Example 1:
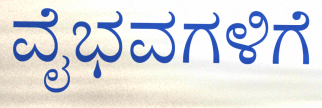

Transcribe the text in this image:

ವೈಭವಗಳಿಗೆ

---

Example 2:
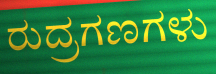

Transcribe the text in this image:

ರುದ್ರಗಣಗಳು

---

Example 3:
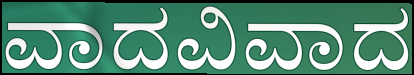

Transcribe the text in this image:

ವಾದವಿವಾದ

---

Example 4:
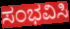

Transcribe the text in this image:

ಸಂಭವಿಸಿ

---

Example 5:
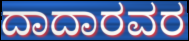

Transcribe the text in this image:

ದಾದಾರವರ